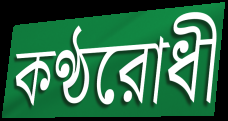
কণ্ঠরোধী